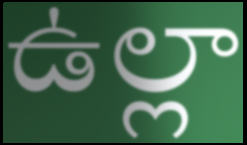
ఉల్లా